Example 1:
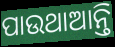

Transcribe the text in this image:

ପାଉଥାଆନ୍ତି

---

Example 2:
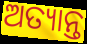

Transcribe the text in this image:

ଅତ୍ୟାନ୍ତ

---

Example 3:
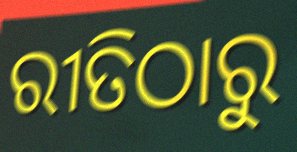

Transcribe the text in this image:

ରୀତିଠାରୁ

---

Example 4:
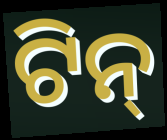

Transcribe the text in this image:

ଟିନ୍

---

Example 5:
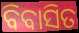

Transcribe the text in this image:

ବିବାସିତ